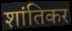
शांतिकर